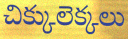
చిక్కులెక్కలు